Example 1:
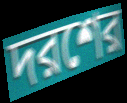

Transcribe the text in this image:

দরশের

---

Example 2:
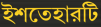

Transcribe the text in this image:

ইশতেহারটি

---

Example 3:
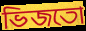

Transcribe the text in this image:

ভিজতো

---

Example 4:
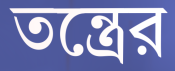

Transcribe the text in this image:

তন্ত্রের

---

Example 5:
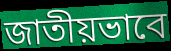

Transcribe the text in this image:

জাতীয়ভাবে